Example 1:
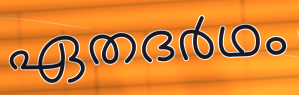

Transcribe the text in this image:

ഏതദർഥം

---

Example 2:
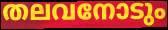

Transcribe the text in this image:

തലവനോടും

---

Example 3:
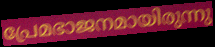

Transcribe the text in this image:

പ്രേമഭാജനമായിരുന്നു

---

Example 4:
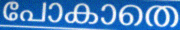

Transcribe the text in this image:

പോകാതെ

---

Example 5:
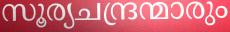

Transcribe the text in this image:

സൂര്യചന്ദ്രന്മാരും